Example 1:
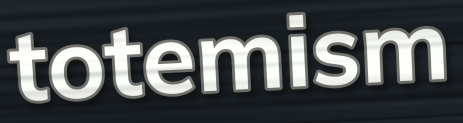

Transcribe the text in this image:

totemism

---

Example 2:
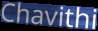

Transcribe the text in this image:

Chavithi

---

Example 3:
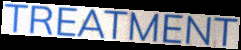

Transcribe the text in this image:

TREATMENT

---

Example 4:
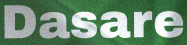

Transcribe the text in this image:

Dasare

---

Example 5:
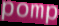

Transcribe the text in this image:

pomp